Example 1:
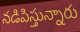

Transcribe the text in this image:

నడిపిస్తున్నారు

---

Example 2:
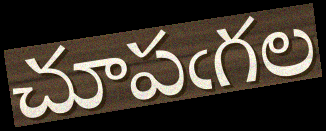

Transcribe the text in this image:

చూపఁగల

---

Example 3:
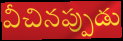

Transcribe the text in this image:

వీచినప్పుడు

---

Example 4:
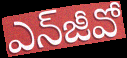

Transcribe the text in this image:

ఎన్‌జీవో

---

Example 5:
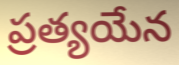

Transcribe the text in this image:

ప్రత్యయేన